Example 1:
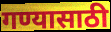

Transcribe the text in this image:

गण्यासाठी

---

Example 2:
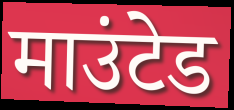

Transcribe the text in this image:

माउंटेड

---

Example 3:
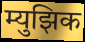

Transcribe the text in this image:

म्युझिक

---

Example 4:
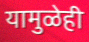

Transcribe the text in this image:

यामुळेही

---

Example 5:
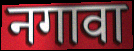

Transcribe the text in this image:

नगावा